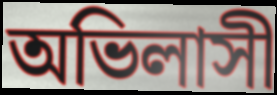
অভিলাসী